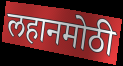
लहानमोठी